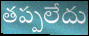
తప్పలేదు